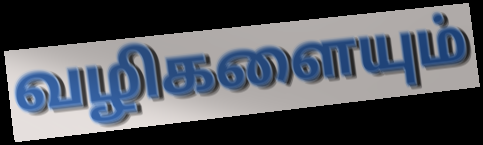
வழிகளையும்